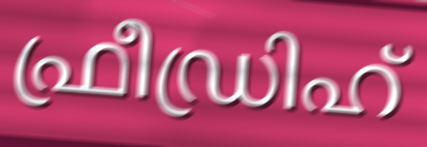
ഫ്രീഡ്രിഹ്